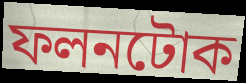
ফলনটোক